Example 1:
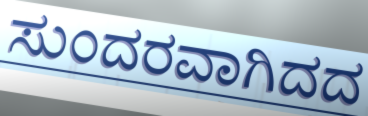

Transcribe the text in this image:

ಸುಂದರವಾಗಿದದ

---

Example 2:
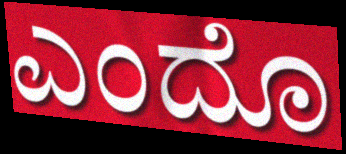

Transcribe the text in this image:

ಎಂದೊ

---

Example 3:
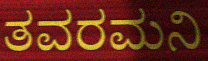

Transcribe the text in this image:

ತವರಮನಿ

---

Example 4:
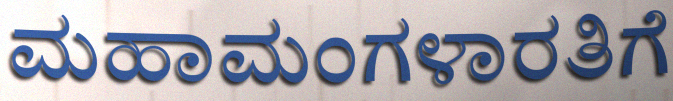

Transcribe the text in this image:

ಮಹಾಮಂಗಳಾರತಿಗೆ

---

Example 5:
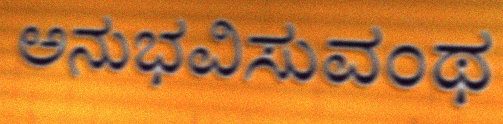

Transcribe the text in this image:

ಅನುಭವಿಸುವಂಥ